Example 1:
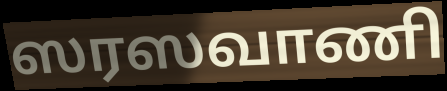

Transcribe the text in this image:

ஸரஸவாணி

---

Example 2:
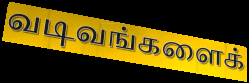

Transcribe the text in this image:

வடிவங்களைக்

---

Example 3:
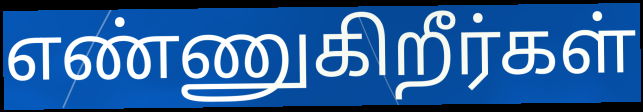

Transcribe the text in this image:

எண்ணுகிறீர்கள்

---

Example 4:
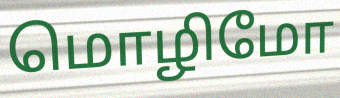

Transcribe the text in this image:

மொழிமோ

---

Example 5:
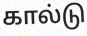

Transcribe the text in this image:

கால்டு